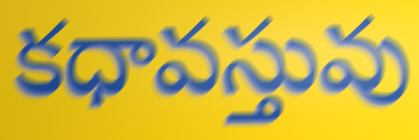
కధావస్తువు